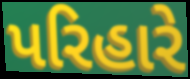
પરિહારે